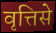
वृत्तिसे